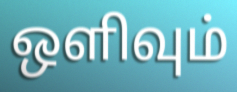
ஒளிவும்